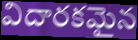
విదారకమైన